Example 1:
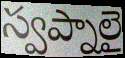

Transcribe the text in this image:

స్వప్నాలై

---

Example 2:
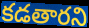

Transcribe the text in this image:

కడతారని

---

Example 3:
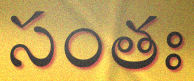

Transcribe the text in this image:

సంతః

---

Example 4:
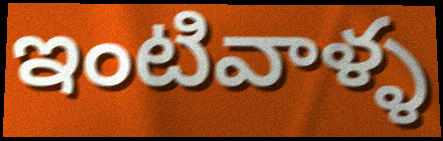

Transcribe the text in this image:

ఇంటివాళ్ళ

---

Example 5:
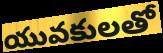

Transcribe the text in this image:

యువకులతో